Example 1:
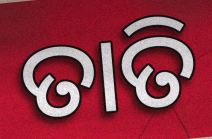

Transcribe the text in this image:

ତାତି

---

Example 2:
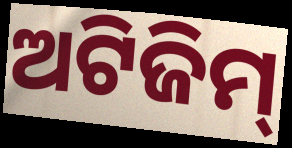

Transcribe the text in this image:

ଅଟିଜିମ୍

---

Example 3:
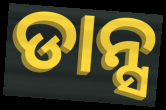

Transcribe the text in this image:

ଡାନ୍ସ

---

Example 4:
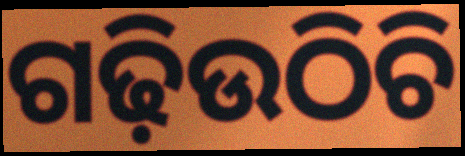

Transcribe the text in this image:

ଗଢ଼ିଉଠିଚି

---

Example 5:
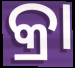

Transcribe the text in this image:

କ୍ରା